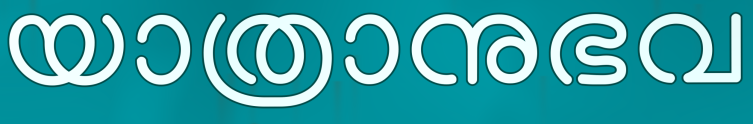
യാത്രാനുഭവ